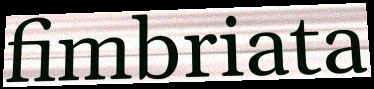
fimbriata